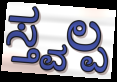
ಸ್ತ್ವಲ್ಪ